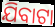
ଯିବାଟା